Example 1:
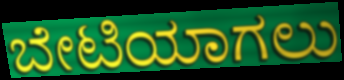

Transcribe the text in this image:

ಬೇಟಿಯಾಗಲು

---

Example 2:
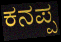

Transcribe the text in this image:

ಕನಪ್ಪ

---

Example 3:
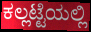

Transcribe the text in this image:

ಕಲ್ಲಟ್ಟೆಯಲ್ಲಿ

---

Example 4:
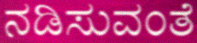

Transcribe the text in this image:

ನಡಿಸುವಂತೆ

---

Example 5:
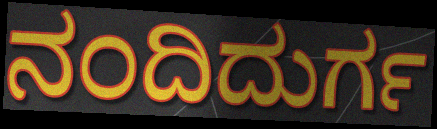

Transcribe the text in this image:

ನಂದಿದುರ್ಗ